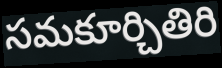
సమకూర్చితిరి